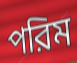
পরিম